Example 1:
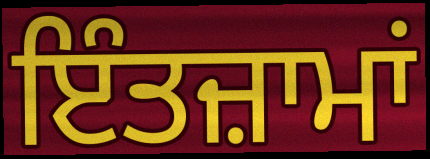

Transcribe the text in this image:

ਇੰਤਜ਼ਾਮਾਂ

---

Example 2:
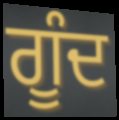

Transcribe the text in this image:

ਗੂੰਦ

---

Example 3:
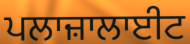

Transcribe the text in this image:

ਪਲਾਜ਼ਾਲਾਈਟ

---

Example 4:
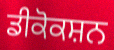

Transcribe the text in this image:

ਡੀਕੋਕਸ਼ਨ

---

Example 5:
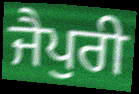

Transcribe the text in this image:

ਜੈਪੁਰੀ